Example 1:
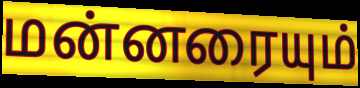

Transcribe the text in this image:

மன்னரையும்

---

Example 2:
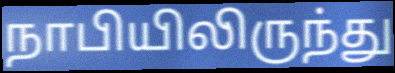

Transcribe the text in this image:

நாபியிலிருந்து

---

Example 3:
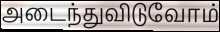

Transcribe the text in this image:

அடைந்துவிடுவோம்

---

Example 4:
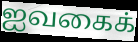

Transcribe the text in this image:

ஐவகைக்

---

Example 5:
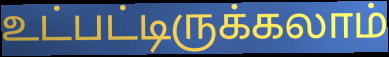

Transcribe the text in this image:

உட்பட்டிருக்கலாம்